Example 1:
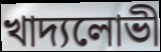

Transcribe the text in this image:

খাদ্যলোভী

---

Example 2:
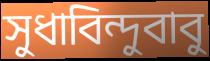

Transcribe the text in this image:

সুধাবিন্দুবাবু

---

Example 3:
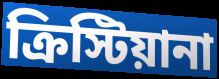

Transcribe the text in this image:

ক্রিস্টিয়ানা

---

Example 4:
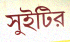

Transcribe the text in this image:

সুইটির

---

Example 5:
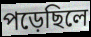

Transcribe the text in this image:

পড়েছিলে